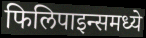
फिलिपाइन्समध्ये